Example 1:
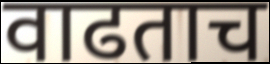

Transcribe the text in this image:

वाढताच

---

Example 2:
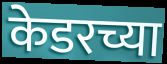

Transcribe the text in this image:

केडरच्या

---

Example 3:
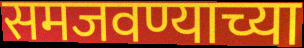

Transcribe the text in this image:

समजवण्याच्या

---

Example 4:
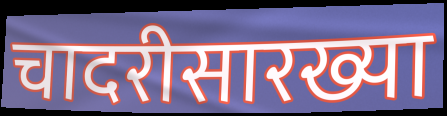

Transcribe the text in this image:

चादरीसारख्या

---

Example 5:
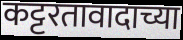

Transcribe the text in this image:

कट्टरतावादाच्या